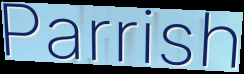
Parrish